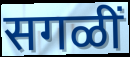
सगळीं